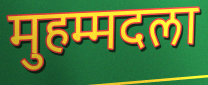
मुहम्मदला